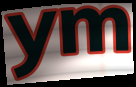
ym